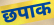
छपाक